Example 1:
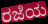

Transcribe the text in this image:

ರಜೆಯ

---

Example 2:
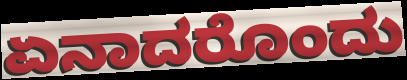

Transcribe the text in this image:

ಏನಾದರೊಂದು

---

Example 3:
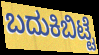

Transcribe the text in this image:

ಬದುಕಿಬಿಟ್ಟೆ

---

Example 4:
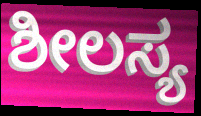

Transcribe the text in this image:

ಶೀಲಸ್ಯ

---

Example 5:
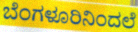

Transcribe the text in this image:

ಬೆಂಗಳೂರಿನಿಂದಲೆ